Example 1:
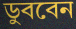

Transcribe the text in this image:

ডুববেন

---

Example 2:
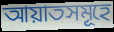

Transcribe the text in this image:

আয়াতসমূহে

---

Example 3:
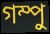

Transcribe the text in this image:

গম্পু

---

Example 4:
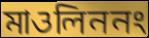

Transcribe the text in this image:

মাওলিননং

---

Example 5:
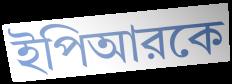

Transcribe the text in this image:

ইপিআরকে